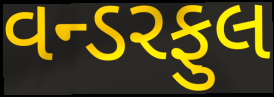
વન્ડરફુલ